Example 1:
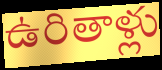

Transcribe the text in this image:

ఉరితాళ్లు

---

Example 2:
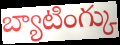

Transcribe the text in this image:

బ్యాటింగ్కు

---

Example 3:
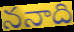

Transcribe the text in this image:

ననాది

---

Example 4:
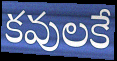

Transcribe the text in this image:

కవులకే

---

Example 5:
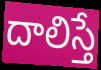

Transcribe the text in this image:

దాలిస్తే